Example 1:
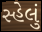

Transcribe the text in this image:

સ્હેલું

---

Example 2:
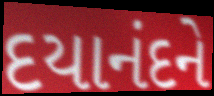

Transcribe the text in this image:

દયાનંદને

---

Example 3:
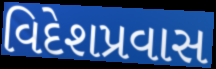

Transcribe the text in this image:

વિદેશપ્રવાસ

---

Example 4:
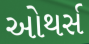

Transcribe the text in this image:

ઓથર્સ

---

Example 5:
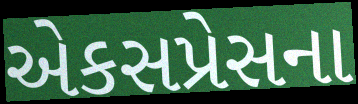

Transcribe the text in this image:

એકસપ્રેસના